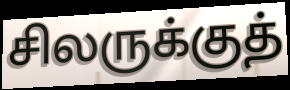
சிலருக்குத்